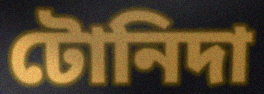
টোনিদা